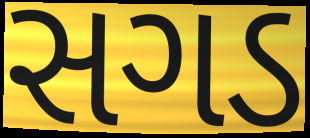
સગડ